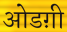
ओडग़ी